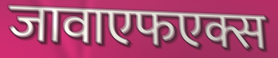
जावाएफएक्स